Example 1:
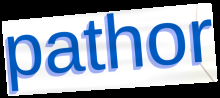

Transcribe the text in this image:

pathor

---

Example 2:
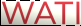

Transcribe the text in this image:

WATI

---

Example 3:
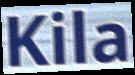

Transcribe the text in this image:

Kila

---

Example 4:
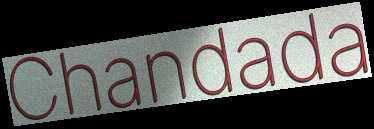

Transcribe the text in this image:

Chandada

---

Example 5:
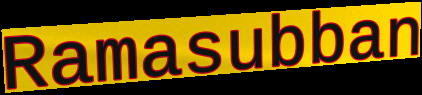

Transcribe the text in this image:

Ramasubban